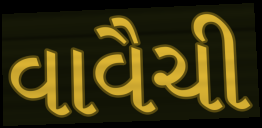
વાવૈચી